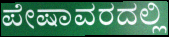
ಪೇಷಾವರದಲ್ಲಿ